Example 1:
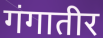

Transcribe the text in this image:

गंगातीर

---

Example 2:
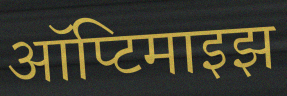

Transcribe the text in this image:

ऑप्टिमाइझ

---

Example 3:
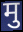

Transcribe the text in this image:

मु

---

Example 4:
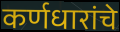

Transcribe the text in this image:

कर्णधारांचे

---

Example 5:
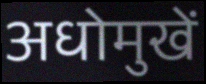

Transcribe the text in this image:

अधोमुखें